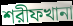
শরীফখানা